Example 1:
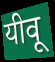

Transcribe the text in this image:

यीवू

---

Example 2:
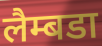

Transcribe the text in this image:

लैम्बडा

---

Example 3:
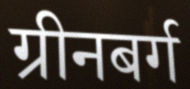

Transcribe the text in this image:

ग्रीनबर्ग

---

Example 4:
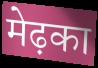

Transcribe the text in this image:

मेढ़का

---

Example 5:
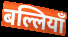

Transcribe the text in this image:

बल्लियाँ